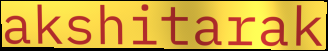
akshitarak